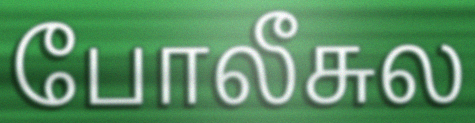
போலீசுல